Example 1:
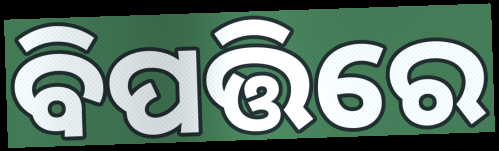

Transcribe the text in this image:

ବିପତ୍ତିରେ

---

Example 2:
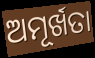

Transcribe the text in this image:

ଅମୂର୍ଖତା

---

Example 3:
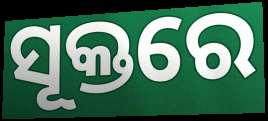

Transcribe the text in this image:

ସୂକ୍ତରେ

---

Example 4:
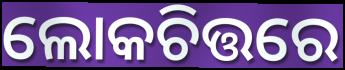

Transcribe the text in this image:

ଲୋକଚିତ୍ତରେ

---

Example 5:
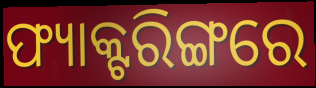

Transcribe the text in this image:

ଫ୍ୟାକ୍ଟରିଙ୍ଗରେ